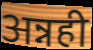
अन्नही